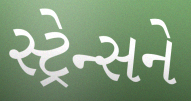
સ્ટ્રેન્સને